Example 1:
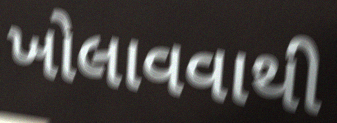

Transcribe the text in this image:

ખોલાવવાથી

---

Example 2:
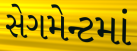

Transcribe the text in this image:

સેગમેન્ટમાં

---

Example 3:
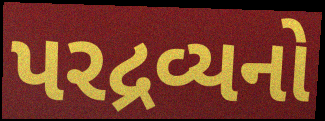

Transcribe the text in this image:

પરદ્રવ્યનો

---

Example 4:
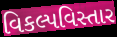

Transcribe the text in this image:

વિકલ્પવિસ્તાર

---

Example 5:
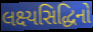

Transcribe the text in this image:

લક્ષ્યસિદ્ધિનો